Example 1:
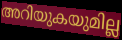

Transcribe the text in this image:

അറിയുകയുമില്ല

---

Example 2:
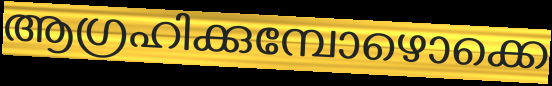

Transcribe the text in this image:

ആഗ്രഹിക്കുമ്പോഴൊക്കെ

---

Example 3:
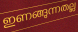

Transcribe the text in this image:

ഇണങ്ങുന്നതല്ല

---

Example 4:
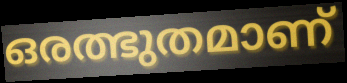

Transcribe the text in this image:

ഒരത്ഭുതമാണ്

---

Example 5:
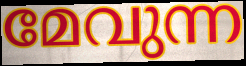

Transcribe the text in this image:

മേവുന്ന